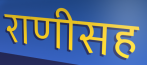
राणीसह